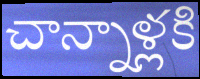
చాన్నాళ్లకి